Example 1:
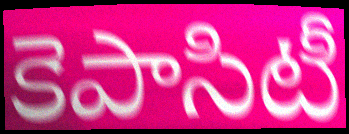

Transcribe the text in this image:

కెపాసిటీ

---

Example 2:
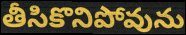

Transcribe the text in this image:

తీసికొనిపోవును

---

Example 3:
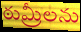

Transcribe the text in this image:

ఠుమ్రీలను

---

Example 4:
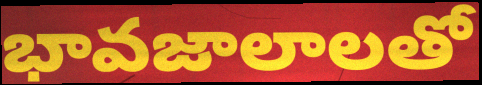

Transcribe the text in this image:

భావజాలాలతో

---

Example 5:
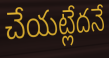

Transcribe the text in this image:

చేయట్లేదనే